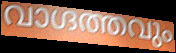
വാഗ്ദത്തവും